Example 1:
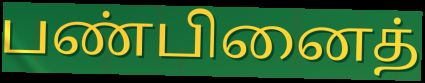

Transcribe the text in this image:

பண்பினைத்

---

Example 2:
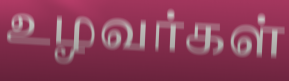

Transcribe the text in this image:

உழவர்கள்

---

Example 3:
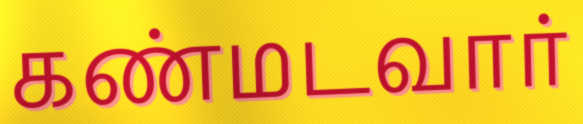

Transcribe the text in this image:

கண்மடவார்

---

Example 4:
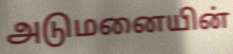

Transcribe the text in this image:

அடுமனையின்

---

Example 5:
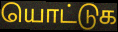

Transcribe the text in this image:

யொட்டுக